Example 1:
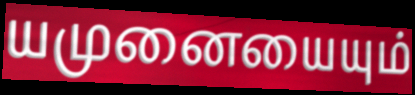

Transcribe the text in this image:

யமுனையையும்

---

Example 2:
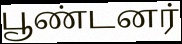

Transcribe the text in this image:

பூண்டனர்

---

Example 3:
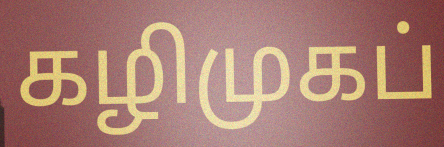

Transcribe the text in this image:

கழிமுகப்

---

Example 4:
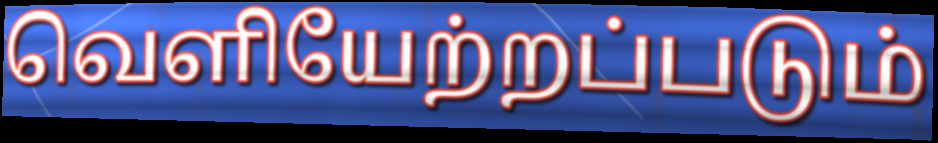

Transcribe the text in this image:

வெளியேற்றப்படும்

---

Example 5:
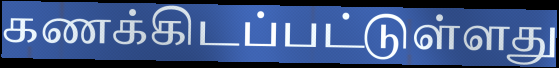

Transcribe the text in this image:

கணக்கிடப்பட்டுள்ளது